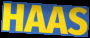
HAAS